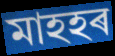
মাহহৰ